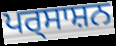
ਪਰ੍ਸਾਸ਼ਨ